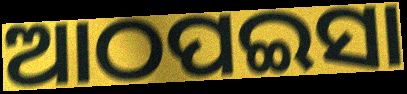
ଆଠପଇସା